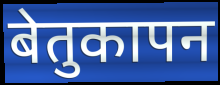
बेतुकापन